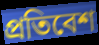
প্রতিবেশ